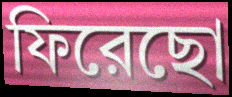
ফিরেছো